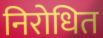
निरोधित